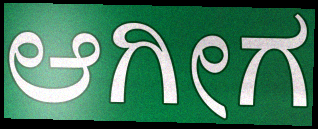
ಆಗೀಗ